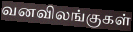
வனவிலங்குகள்